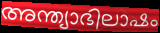
അന്ത്യാഭിലാഷം